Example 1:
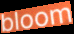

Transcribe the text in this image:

bloom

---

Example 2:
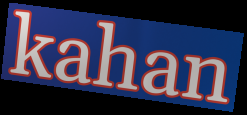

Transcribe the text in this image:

kahan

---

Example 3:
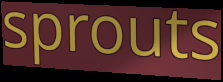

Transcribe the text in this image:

sprouts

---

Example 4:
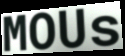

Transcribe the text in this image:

MOUs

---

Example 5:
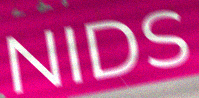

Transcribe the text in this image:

NIDS